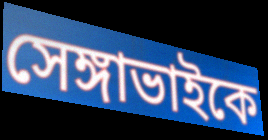
সেঙ্গাভাইকে